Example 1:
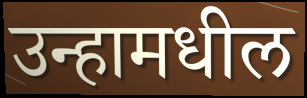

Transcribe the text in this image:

उन्हामधील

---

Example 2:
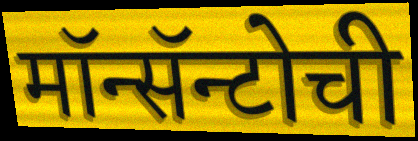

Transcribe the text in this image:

मॉन्सॅन्टोची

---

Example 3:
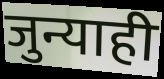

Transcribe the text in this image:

जुन्याही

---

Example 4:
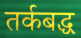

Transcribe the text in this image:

तर्कबद्ध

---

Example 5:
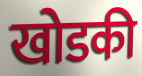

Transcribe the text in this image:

खोडकी